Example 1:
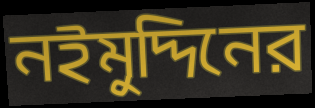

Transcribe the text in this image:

নইমুদ্দিনের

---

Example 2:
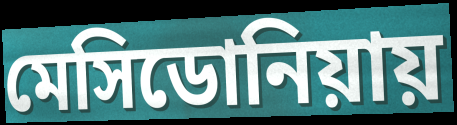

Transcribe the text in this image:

মেসিডোনিয়ায়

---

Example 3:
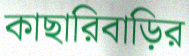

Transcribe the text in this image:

কাছারিবাড়ির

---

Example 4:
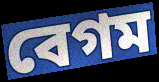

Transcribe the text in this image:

বেগম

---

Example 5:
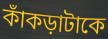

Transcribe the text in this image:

কাঁকড়াটাকে